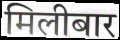
मिलीबार